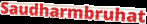
Saudharmbruhat